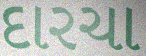
દારચા